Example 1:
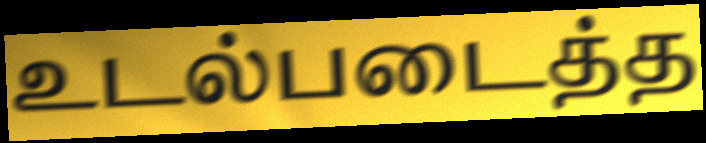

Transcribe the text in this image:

உடல்படைத்த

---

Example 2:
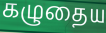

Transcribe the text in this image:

கழுதைய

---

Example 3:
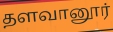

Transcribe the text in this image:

தளவானூர்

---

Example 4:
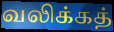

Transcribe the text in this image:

வலிக்கத்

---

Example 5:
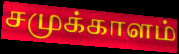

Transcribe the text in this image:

சமுக்காளம்